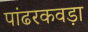
पांढरकवड़ा